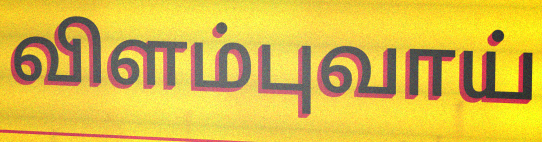
விளம்புவாய்